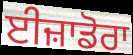
ਈਜ਼ਾਡੋਰਾ